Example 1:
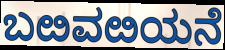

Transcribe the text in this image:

ಬೞವೞಯನೆ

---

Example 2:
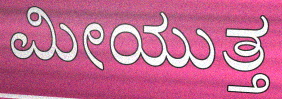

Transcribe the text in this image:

ಮೀಯುತ್ತ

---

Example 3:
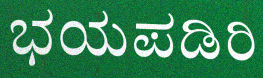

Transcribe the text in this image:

ಭಯಪಡಿರಿ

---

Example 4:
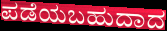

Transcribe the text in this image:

ಪಡೆಯಬಹುದಾದ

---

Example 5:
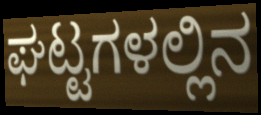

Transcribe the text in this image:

ಘಟ್ಟಗಳಲ್ಲಿನ